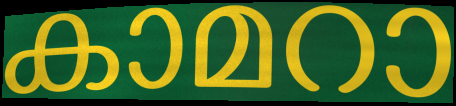
കാമറാ